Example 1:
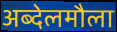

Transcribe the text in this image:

अब्देलमौला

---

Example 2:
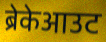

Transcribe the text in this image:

ब्रेकेआउट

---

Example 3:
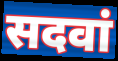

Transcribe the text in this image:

सदवां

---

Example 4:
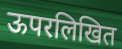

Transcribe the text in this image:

ऊपरलिखित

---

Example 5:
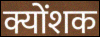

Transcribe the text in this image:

क्योंशक